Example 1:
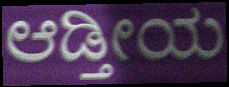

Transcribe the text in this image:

ಆಡ್ತೀಯ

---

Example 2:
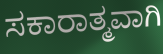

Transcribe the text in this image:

ಸಕಾರಾತ್ಮವಾಗಿ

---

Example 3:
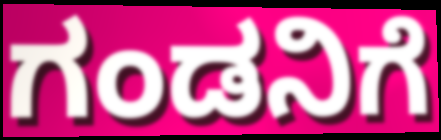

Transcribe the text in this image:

ಗಂಡನಿಗೆ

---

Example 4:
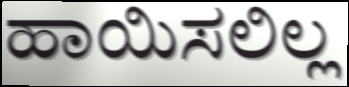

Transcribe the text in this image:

ಹಾಯಿಸಲಿಲ್ಲ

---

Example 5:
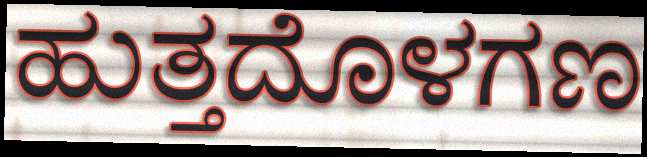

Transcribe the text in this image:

ಹುತ್ತದೊಳಗಣ